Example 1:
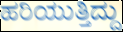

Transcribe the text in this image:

ಹರಿಯುತ್ತಿದ್ದು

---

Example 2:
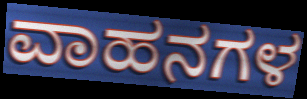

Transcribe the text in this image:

ವಾಹನಗಳ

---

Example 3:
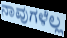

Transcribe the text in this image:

ನಾವುಗಳೆಲ್ಲ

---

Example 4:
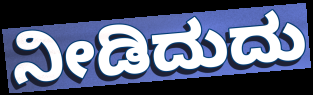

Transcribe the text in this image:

ನೀಡಿದುದು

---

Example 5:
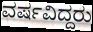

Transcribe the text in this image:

ವರ್ಷವಿದ್ದರು